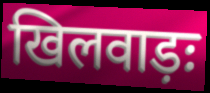
खिलवाड़ः